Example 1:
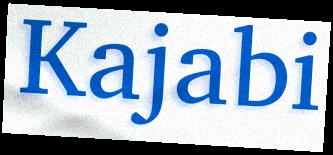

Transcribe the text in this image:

Kajabi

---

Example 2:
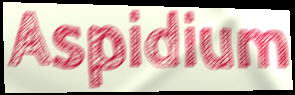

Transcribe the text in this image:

Aspidium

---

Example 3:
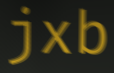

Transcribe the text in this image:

jxb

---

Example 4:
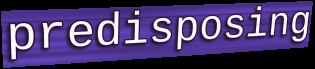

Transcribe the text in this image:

predisposing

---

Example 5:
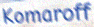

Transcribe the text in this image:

Komaroff